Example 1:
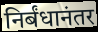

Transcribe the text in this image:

निर्बंधानंतर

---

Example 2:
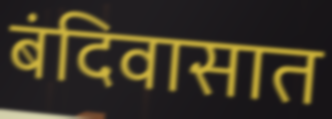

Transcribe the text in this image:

बंदिवासात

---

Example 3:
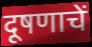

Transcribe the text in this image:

दूषणाचें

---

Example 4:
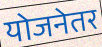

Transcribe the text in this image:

योजनेतर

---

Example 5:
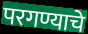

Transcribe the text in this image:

परगण्याचे